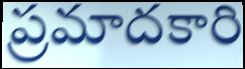
ప్రమాదకారి